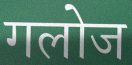
गलोज